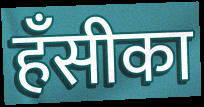
हँसीका